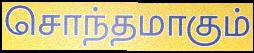
சொந்தமாகும்